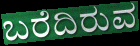
ಬರೆದಿರುವ